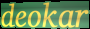
deokar